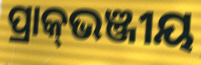
ପ୍ରାକ୍‌ଭଞ୍ଜୀୟ